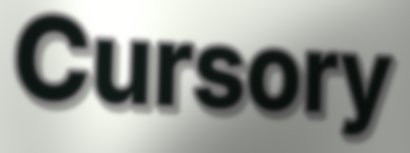
Cursory